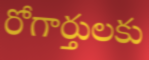
రోగార్తులకు